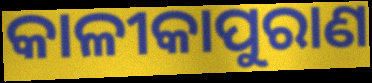
କାଳୀକାପୁରାଣ